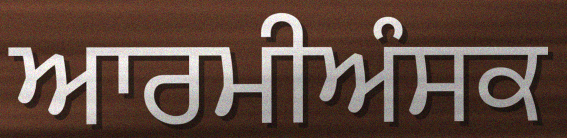
ਆਰਮੀਅੰਸਕ